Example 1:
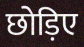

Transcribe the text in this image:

छोड़िए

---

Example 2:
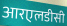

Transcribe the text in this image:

आरएलडीसी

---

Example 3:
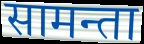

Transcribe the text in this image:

सामन्ता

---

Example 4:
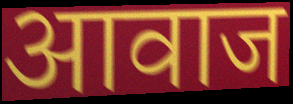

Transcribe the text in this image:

आवाज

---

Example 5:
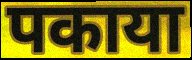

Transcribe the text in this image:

पकाया